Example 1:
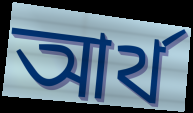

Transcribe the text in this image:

আর্থ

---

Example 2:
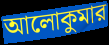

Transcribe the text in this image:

আলোকুমার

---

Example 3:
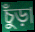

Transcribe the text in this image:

চুঁড়া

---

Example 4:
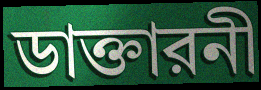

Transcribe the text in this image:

ডাক্তারনী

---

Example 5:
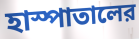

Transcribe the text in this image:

হাস্পাতালের